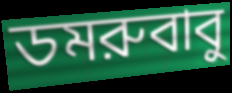
ডমরুবাবু